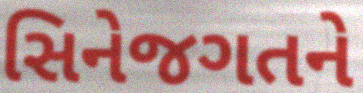
સિનેજગતને